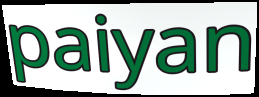
paiyan